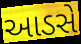
આડસે